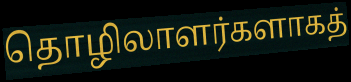
தொழிலாளர்களாகத்